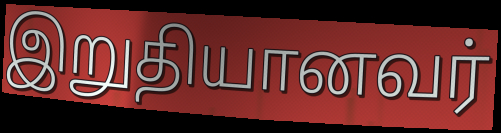
இறுதியானவர்